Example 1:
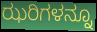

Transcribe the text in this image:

ಝರಿಗಳನ್ನೂ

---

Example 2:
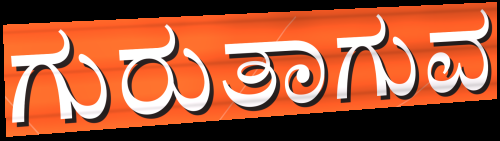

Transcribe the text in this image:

ಗುರುತಾಗುವ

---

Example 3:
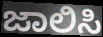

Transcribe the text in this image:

ಜಾಲಿಸಿ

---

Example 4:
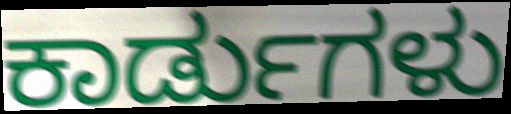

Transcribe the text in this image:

ಕಾರ್ಡುಗಳು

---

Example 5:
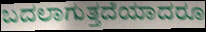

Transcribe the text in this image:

ಬದಲಾಗುತ್ತದೆಯಾದರೂ